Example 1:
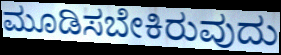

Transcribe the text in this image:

ಮೂಡಿಸಬೇಕಿರುವುದು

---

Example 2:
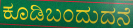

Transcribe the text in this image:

ಕೂಡಿಬಂದುದನೆ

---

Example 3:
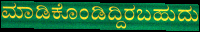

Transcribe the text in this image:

ಮಾಡಿಕೊಂಡಿದ್ದಿರಬಹುದು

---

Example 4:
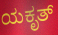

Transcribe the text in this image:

ಯಕೃತ್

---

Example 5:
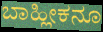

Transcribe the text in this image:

ಬಾಹ್ಲೀಕನೂ